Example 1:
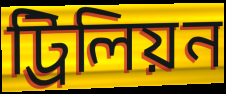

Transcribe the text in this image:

ট্রিলিয়ন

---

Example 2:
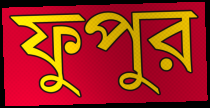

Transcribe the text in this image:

ফুপুর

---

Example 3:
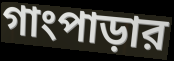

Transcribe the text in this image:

গাংপাড়ার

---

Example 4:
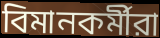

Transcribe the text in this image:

বিমানকর্মীরা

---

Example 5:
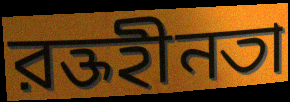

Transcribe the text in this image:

রক্তহীনতা